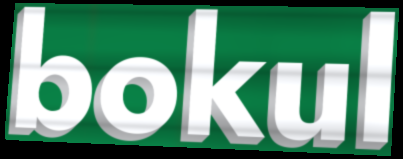
bokul